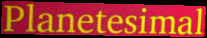
Planetesimal